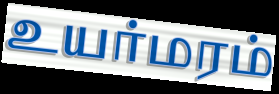
உயர்மரம்